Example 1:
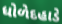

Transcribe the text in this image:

ધોળેદહાડે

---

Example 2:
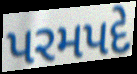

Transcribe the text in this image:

પરમપદે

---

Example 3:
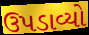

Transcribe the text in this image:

ઉપડાવ્યો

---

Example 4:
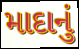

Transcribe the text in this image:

માદાનું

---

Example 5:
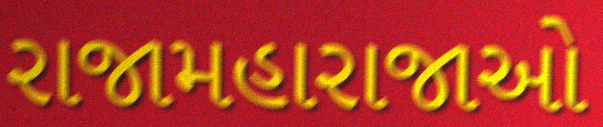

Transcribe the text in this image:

રાજામહારાજાઓ